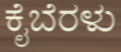
ಕೈಬೆರಳು